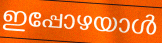
ഇപ്പോഴയാൾ